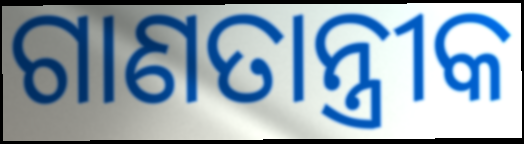
ଗାଣତାନ୍ତ୍ରୀକ